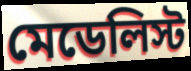
মেডেলিস্ট